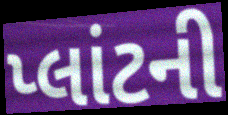
પ્લાંટની